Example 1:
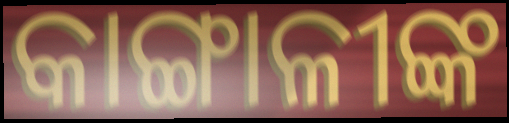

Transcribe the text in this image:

କାଙ୍ଗାଳୀଙ୍କ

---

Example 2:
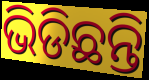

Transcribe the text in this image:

ଭିଡିଛନ୍ତି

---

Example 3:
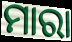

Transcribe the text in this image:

ମାରା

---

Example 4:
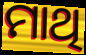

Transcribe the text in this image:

ମାଥି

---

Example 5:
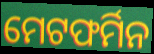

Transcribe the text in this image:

ମେଟଫର୍ମିନ